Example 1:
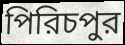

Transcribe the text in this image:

পিরিচপুর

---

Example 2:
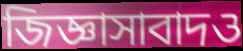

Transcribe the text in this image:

জিজ্ঞাসাবাদও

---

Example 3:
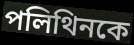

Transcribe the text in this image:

পলিথিনকে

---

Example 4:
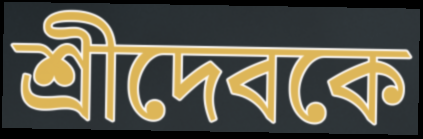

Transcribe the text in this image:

শ্রীদেবকে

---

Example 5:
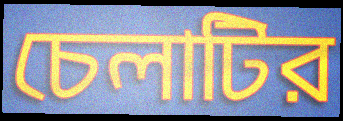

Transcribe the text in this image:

চেলাটির